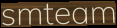
smteam